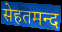
सेहतमन्द